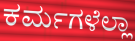
ಕರ್ಮಗಳೆಲ್ಲಾ